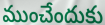
ముంచేందుకు